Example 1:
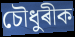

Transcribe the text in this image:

চৌধুৰীক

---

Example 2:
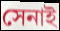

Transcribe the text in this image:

সেনাই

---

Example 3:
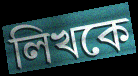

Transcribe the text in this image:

লিখকে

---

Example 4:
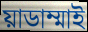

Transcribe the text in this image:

য়াডাম্মাই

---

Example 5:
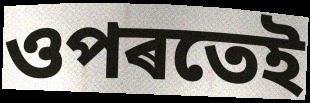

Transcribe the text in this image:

ওপৰতেই